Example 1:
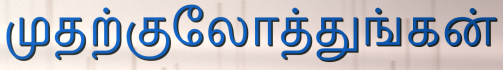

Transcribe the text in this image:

முதற்குலோத்துங்கன்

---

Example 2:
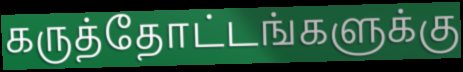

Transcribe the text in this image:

கருத்தோட்டங்களுக்கு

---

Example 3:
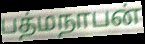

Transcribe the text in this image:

பத்மநாபன்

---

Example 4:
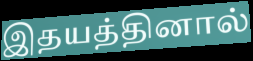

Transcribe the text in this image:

இதயத்தினால்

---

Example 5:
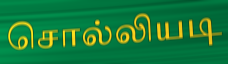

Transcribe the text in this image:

சொல்லியடி